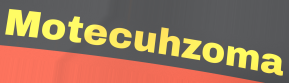
Motecuhzoma